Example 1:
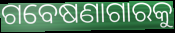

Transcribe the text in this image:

ଗବେଷଣାଗାରକୁ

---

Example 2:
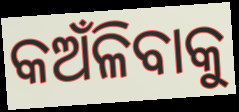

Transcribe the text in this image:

କଅଁଳିବାକୁ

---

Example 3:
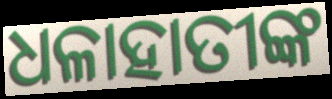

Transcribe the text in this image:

ଧଳାହାତୀଙ୍କ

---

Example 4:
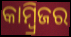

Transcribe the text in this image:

କାମ୍ବ୍ରିଜର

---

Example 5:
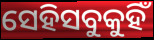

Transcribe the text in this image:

ସେହିସବୁକୁହିଁ